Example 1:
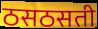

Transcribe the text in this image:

ठसठसती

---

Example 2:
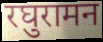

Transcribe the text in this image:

रघुरामन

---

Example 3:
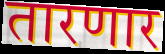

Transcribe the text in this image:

तारणार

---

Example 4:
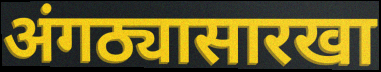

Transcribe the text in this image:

अंगठ्यासारखा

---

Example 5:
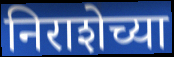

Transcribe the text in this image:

निराशेच्या